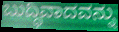
ಬುದ್ಧಿವಾದವನ್ನು